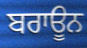
ਬਰਾਊਨ